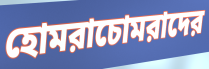
হোমরাচোমরাদের